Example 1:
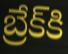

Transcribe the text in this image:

బ్రేక్‌కి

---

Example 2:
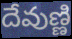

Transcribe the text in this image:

దేవుణ్ణి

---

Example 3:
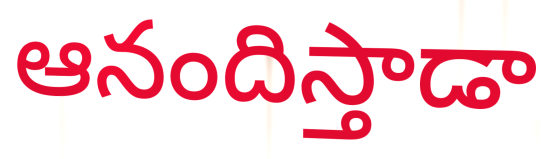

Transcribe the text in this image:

ఆనందిస్తాడా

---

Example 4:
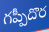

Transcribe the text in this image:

గప్పీదొర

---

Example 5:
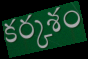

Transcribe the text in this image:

కర్కశం